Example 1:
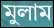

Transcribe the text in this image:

মুলাম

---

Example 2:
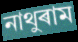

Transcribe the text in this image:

নাথুৰাম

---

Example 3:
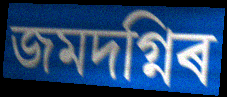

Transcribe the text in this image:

জমদগ্নিৰ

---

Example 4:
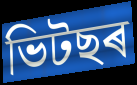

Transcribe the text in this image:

ভিটছৰ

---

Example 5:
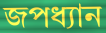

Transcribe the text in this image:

জপধ্যান